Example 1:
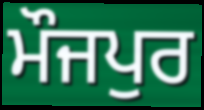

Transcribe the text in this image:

ਮੌਜਪੁਰ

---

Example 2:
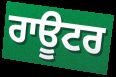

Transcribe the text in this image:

ਰਾਊਟਰ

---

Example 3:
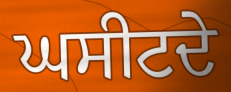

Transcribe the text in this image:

ਘਸੀਟਦੇ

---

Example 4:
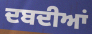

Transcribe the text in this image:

ਦਬਦੀਆਂ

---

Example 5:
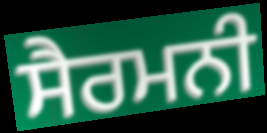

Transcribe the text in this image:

ਸੈਰਮਨੀ